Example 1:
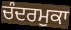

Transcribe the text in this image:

ਚੰਦਰਮੁਕਾ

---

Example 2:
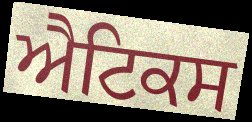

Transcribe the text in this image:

ਐਟਿਕਸ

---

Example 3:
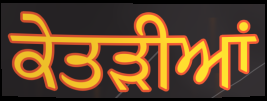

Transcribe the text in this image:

ਕੇਤੜੀਆਂ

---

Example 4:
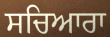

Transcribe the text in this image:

ਸਚਿਆਰਾ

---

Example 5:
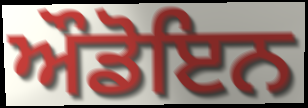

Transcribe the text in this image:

ਔਡੋਇਨ